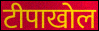
टीपाखोल